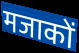
मजाकों